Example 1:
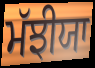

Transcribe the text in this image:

ਮੱਝੀਯਾ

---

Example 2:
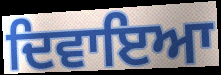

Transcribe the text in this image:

ਦਿਵਾਇਆ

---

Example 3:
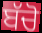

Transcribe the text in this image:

ਬੱਚੋ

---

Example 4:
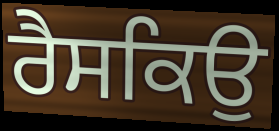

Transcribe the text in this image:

ਰੈਸਕਿਉ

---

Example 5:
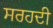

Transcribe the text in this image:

ਸਰਹਦੀ